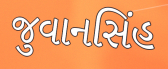
જુવાનસિંહ